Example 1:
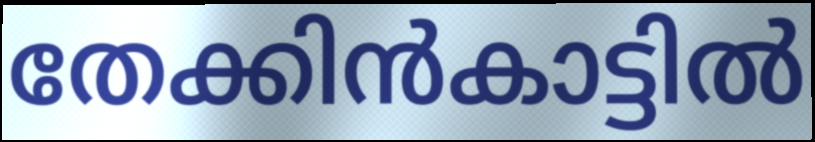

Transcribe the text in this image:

തേക്കിൻകാട്ടിൽ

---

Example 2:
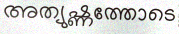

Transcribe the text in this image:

അത്യുഷ്ണത്തോടെ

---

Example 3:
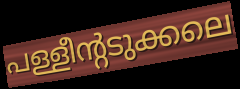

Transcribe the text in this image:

പള്ളീന്റടുക്കലെ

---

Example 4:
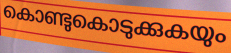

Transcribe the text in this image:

കൊണ്ടുകൊടുക്കുകയും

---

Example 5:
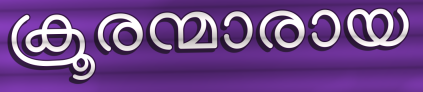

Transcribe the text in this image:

ക്രൂരന്മാരായ